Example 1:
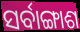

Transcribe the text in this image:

ସର୍ବାଙ୍ଗାଶ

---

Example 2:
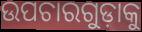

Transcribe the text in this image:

ଉପଚାରଗୁଡ଼ାକୁ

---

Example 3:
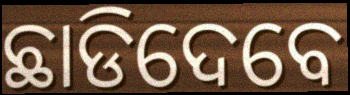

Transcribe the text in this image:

ଛାଡିଦେବେ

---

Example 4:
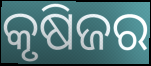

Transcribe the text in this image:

କୃଷିଜର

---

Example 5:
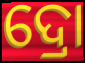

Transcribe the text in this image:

ଦ୍ରୋ